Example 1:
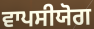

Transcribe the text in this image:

ਵਾਪਸੀਯੋਗ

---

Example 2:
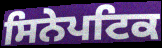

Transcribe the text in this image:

ਸਿਨੇਪਟਿਕ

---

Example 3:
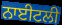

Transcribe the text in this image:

ਨਾਈਟਲੀ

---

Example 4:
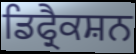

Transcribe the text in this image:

ਡਿਫ੍ਰੈਕਸ਼ਨ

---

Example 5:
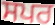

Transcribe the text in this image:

ਸਪਰ